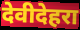
देवीदेहरा